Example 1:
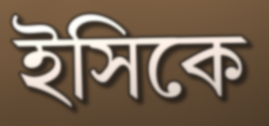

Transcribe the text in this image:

ইসিকে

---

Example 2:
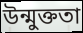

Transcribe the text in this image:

উন্মুক্ততা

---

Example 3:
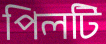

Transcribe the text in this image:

পিলটি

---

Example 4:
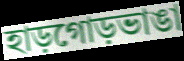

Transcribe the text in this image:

হাড়গোড়ভাঙা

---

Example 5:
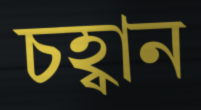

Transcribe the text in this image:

চহ্বান